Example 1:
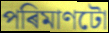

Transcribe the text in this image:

পৰিমাণটো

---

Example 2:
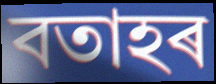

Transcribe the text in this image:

বতাহৰ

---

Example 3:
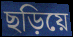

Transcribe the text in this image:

ছড়িয়ে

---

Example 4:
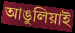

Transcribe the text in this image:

আঙুলিয়াই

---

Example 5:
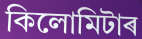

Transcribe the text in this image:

কিলোমিটাৰ